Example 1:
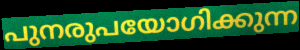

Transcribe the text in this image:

പുനരുപയോഗിക്കുന്ന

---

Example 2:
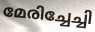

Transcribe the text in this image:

മേരിച്ചേച്ചി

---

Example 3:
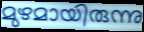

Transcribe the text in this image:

മുഴമായിരുന്നു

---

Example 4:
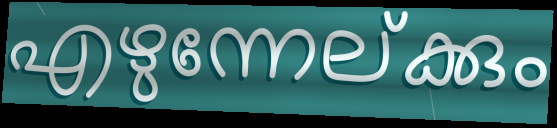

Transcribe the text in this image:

എഴുന്നേല്ക്കും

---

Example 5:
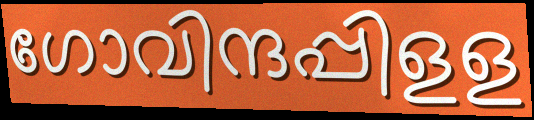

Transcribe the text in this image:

ഗോവിന്ദപ്പിളള